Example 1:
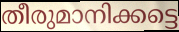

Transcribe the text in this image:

തീരുമാനിക്കട്ടെ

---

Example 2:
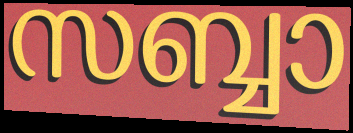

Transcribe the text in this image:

സബ്ബാ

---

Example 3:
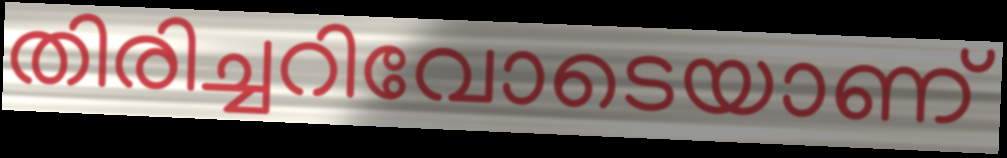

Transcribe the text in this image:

തിരിച്ചറിവോടെയാണ്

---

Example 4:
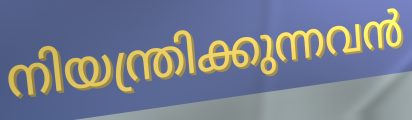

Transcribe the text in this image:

നിയന്ത്രിക്കുന്നവൻ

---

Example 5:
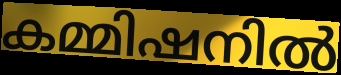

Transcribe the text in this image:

കമ്മിഷനിൽ